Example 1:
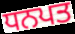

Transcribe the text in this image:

ਧਨਪਤ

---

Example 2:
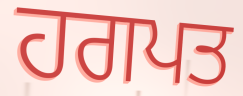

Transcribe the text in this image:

ਹਗਪਤ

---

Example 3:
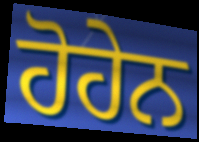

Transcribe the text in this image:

ਹੋਹੇਨ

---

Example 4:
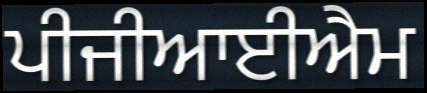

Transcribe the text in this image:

ਪੀਜੀਆਈਐਮ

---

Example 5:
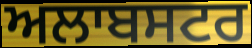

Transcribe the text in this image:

ਅਲਾਬਸਟਰ